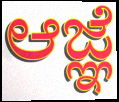
ಆಜ್ಞೆ